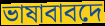
ভাষাবাবদে